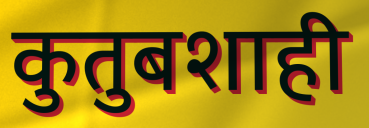
कुतुबशाही